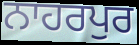
ਨਾਹਰਪੁਰ